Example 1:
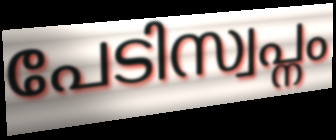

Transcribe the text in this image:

പേടിസ്വപ്നം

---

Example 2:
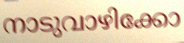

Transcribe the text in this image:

നാടുവാഴിക്കോ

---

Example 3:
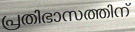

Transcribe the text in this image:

പ്രതിഭാസത്തിന്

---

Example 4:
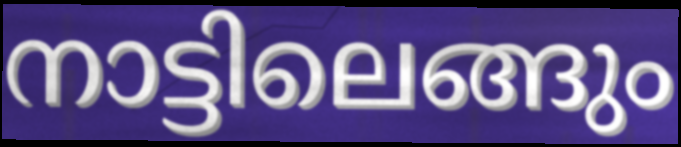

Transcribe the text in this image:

നാട്ടിലെങ്ങും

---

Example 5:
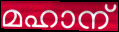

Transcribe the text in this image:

മഹാന്